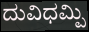
ದುವಿಧಮ್ಪಿ